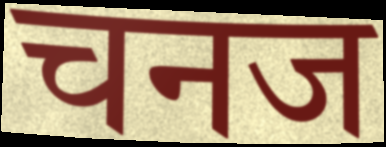
चनज